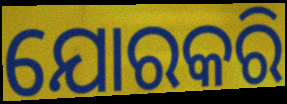
ଯୋରକରି